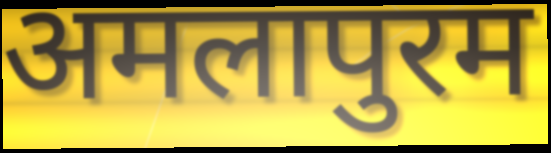
अमलापुरम